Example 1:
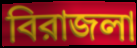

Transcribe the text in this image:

বিরাজলা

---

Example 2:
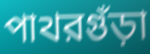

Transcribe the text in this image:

পাথরগুঁড়া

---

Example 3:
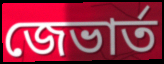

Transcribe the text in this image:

জেভার্ত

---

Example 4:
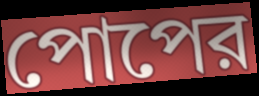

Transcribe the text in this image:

পোপের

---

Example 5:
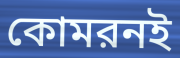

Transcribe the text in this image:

কোমরনই